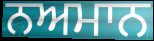
ਨਅਮਾਨ